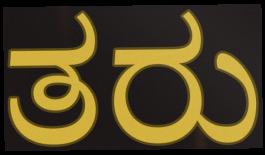
ತರು